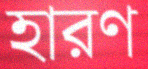
হারণ